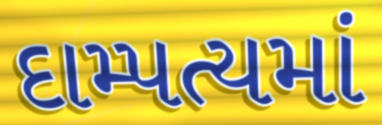
દામ્પત્યમાં